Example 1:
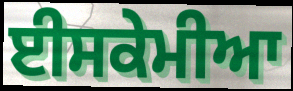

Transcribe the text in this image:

ਈਸਕੇਮੀਆ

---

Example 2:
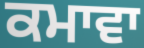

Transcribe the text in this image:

ਕਮਾਵਾ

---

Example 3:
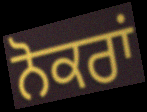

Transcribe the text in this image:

ਨੋਕਰਾਂ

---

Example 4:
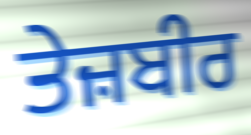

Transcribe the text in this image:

ਤੇਜ਼ਬੀਰ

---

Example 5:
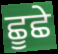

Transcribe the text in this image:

ਛੂਛੇ